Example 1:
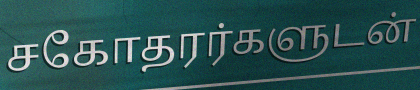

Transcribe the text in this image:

சகோதரர்களுடன்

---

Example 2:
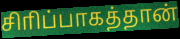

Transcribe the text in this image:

சிரிப்பாகத்தான்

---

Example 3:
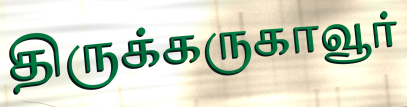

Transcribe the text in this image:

திருக்கருகாவூர்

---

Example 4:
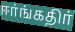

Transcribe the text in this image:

ஈர்ங்கதிர்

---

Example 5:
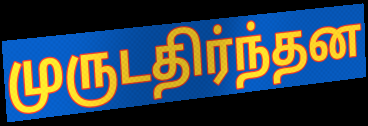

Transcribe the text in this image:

முருடதிர்ந்தன